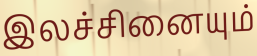
இலச்சினையும்